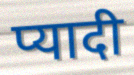
प्यादी